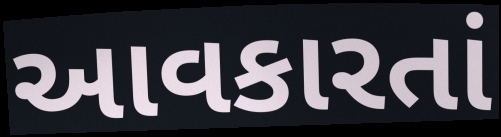
આવકારતાં